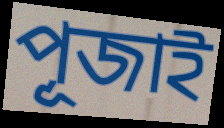
পূজাই